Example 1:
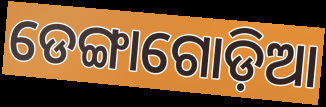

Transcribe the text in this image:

ଡେଙ୍ଗାଗୋଡ଼ିଆ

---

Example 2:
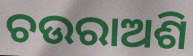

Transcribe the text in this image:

ଚଉରାଅଶି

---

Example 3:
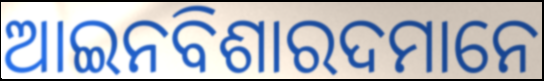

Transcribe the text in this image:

ଆଇନବିଶାରଦମାନେ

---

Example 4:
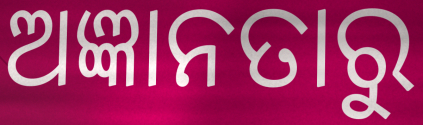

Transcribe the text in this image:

ଅଜ୍ଞାନତାରୁ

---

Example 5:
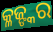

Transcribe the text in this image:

କ୍ଳଜ୍ଙ୍କର